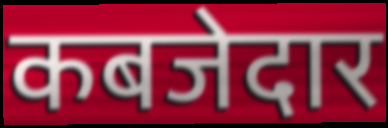
कबजेदार